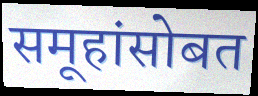
समूहांसोबत